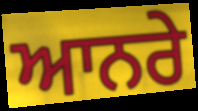
ਆਨਰੇ